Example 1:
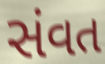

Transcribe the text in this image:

સંવત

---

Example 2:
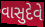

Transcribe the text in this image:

વાસુદેવે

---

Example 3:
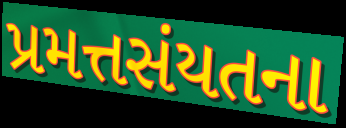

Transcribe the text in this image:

પ્રમત્તસંયતના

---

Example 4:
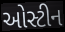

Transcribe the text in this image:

ઓસ્ટીન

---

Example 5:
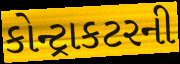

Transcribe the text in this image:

કોન્ટ્રાકટરની